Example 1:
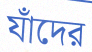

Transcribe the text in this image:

যাঁদের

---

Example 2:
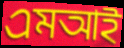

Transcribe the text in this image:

এমআই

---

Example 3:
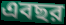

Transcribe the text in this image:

এবছর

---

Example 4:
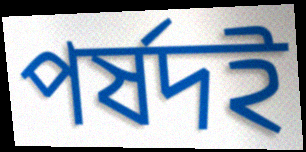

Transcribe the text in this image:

পর্ষদই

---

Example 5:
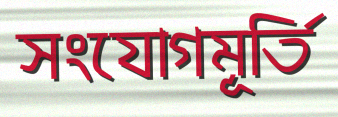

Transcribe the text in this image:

সংযোগমূর্তি